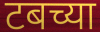
टबच्या